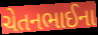
ચેતનભાઈના